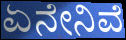
ಏನೇನಿವೆ